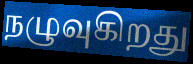
நழுவுகிறது